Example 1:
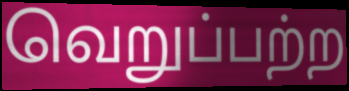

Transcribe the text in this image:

வெறுப்பற்ற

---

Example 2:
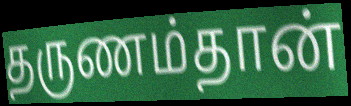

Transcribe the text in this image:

தருணம்தான்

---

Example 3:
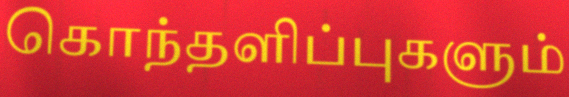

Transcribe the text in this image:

கொந்தளிப்புகளும்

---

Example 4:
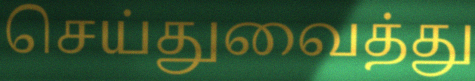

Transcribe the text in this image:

செய்துவைத்து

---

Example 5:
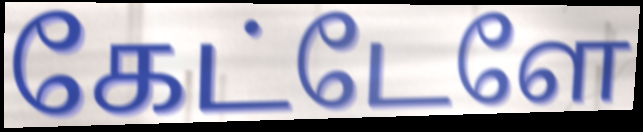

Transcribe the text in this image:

கேட்டேளே